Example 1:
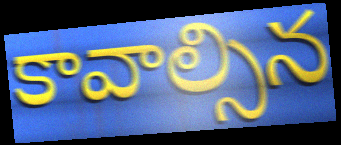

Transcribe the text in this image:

కావాల్సిన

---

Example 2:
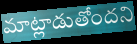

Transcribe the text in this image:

మాట్లాడుతోందని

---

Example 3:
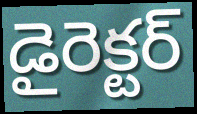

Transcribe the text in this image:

డైరెక్టర్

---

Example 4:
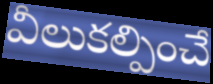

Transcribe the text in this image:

వీలుకల్పించే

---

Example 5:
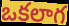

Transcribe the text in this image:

ఒకలాగ